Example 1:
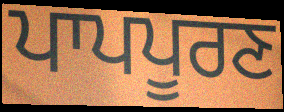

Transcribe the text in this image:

ਪਾਪਪੂਰਣ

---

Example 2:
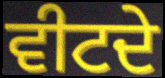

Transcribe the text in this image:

ਵੀਟਦੇ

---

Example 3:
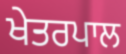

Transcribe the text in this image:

ਖੇਤਰਪਾਲ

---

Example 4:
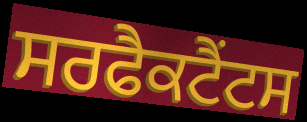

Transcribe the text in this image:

ਸਰਫੈਕਟੈਂਟਸ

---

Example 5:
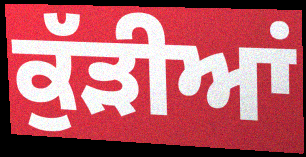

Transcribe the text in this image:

ਕੁੱੜੀਆਂ